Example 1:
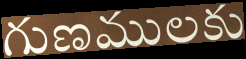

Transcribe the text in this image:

గుణములకు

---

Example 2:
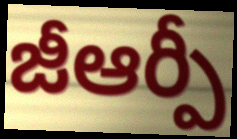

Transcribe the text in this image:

జీఆర్పీ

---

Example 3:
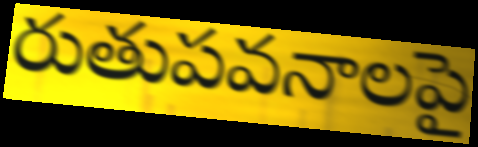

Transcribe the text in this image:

రుతుపవనాలపై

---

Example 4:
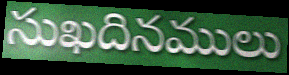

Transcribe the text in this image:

సుఖదినములు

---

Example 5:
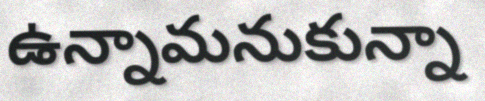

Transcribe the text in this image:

ఉన్నామనుకున్నా